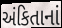
અંકિતાનાં